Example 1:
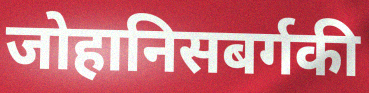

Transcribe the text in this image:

जोहानिसबर्गकी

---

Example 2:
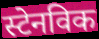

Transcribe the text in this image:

स्टेनविक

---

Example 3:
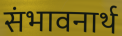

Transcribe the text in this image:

संभावनार्थ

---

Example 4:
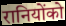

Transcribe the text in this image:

रानियोंको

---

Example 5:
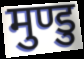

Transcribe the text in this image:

मुण्डु